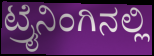
ಟ್ರೈನಿಂಗಿನಲ್ಲಿ